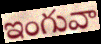
ఇంగువా